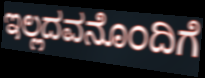
ಇಲ್ಲದವನೊಂದಿಗೆ